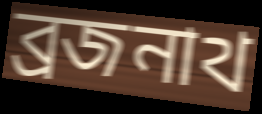
ব্রজনাথ